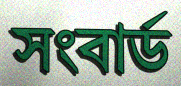
সংবার্ড